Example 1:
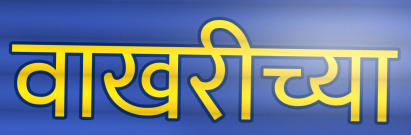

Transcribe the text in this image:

वाखरीच्या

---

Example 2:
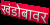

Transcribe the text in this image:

खंडोबावर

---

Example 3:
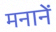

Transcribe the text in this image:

मनानें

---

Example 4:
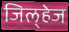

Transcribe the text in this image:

जिल्हेज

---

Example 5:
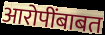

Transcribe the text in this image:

आरोपींबाबत